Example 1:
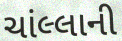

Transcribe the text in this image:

ચાંલ્લાની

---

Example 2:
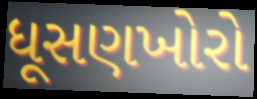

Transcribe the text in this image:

ધૂસણખોરો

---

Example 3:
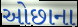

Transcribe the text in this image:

ઓછાના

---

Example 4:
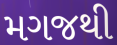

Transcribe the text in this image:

મગજથી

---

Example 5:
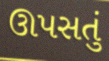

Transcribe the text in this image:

ઊપસતું